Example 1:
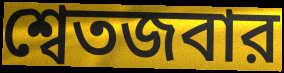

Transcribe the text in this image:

শ্বেতজবার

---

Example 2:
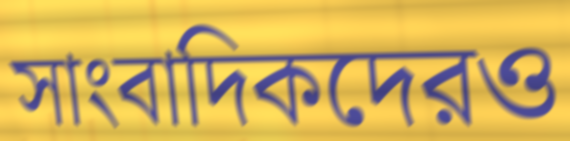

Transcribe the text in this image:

সাংবাদিকদেরও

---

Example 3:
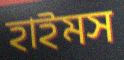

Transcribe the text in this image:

হাইমস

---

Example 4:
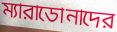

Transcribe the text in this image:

ম্যারাডোনাদের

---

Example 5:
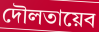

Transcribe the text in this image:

দৌলতায়েব